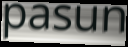
pasun